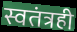
स्वतंत्रही